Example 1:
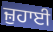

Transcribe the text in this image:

ਜ਼ੁਹਾਈ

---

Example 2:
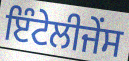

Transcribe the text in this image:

ਇੰਟੇਲੀਜੇੰਸ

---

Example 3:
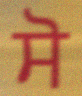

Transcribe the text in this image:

ਸੋ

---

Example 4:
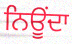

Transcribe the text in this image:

ਨਿਊਂਦਾ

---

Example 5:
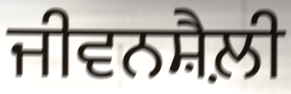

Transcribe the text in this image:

ਜੀਵਨਸ਼ੈਲ਼ੀ